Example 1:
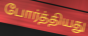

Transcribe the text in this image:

போர்த்தியது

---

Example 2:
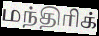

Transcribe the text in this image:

மந்திரிக்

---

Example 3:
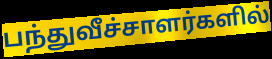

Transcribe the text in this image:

பந்துவீச்சாளர்களில்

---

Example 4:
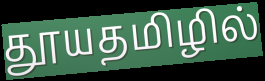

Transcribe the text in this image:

தூயதமிழில்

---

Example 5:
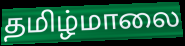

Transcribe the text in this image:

தமிழ்மாலை